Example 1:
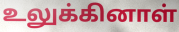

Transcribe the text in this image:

உலுக்கினாள்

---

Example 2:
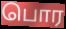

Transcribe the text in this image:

பொர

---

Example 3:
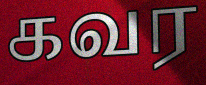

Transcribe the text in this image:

கவர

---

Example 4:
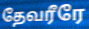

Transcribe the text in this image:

தேவரீரே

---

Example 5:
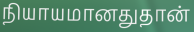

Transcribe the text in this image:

நியாயமானதுதான்